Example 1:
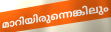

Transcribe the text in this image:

മാറിയിരുന്നെങ്കിലും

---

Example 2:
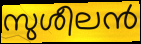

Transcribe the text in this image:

സുശീലൻ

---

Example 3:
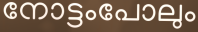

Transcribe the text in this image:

നോട്ടംപോലും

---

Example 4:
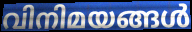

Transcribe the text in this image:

വിനിമയങ്ങൾ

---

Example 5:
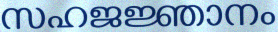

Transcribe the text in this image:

സഹജജ്ഞാനം